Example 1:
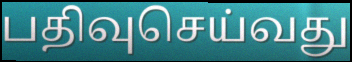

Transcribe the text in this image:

பதிவுசெய்வது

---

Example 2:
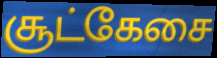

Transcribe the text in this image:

சூட்கேசை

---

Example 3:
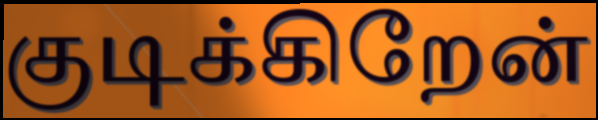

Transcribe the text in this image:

குடிக்கிறேன்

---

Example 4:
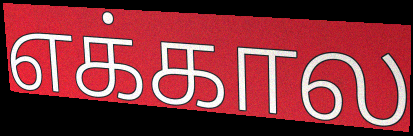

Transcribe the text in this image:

எக்கால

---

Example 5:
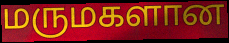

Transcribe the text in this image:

மருமகளான